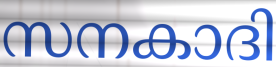
സനകാദി